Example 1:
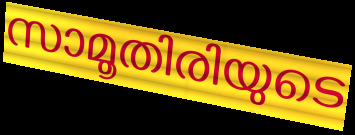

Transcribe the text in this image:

സാമൂതിരിയുടെ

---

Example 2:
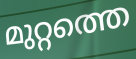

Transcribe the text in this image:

മുറ്റത്തെ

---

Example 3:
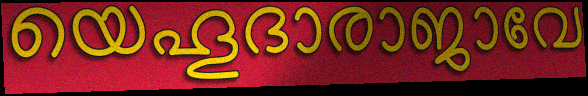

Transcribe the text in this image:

യെഹൂദാരാജാവേ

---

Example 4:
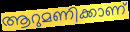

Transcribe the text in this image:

ആറുമണിക്കാണ്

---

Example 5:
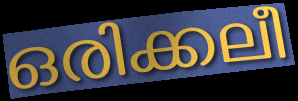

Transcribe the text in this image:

ഒരിക്കലീ